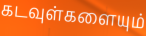
கடவுள்களையும்